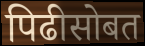
पिढीसोबत